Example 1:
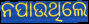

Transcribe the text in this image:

ନପାଉଥିଲେ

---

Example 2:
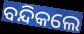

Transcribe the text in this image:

ବନ୍ଦିକଲେ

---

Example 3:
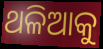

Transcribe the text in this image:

ଥଳିଆକୁ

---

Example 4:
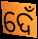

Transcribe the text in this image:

ଦେଁ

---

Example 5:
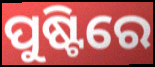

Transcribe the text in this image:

ପୁଷ୍ଟିରେ